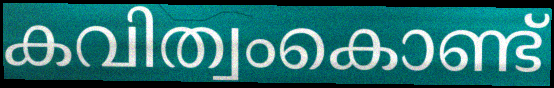
കവിത്വംകൊണ്ട്